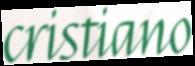
cristiano